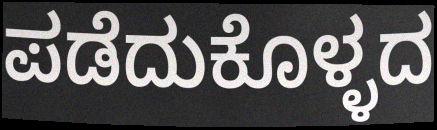
ಪಡೆದುಕೊಳ್ಳದ